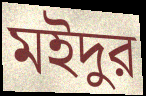
মইদুর